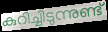
കുറിച്ചിടുന്നുണ്ട്